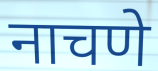
नाचणे